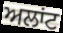
ਅਲਾਂਟ